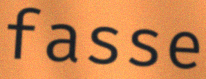
fasse